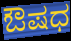
ಔಷಧ